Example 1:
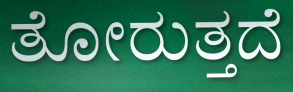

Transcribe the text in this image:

ತೋರುತ್ತದೆ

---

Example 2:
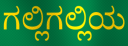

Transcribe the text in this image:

ಗಲ್ಲಿಗಲ್ಲಿಯ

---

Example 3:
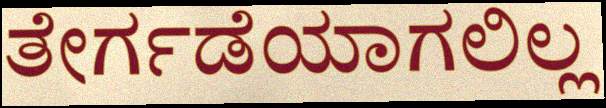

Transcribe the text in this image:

ತೇರ್ಗಡೆಯಾಗಲಿಲ್ಲ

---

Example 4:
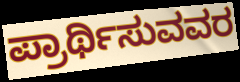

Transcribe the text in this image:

ಪ್ರಾರ್ಥಿಸುವವರ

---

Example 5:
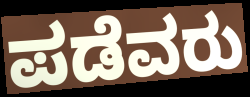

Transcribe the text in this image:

ಪಡೆವರು